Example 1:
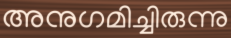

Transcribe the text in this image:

അനുഗമിച്ചിരുന്നു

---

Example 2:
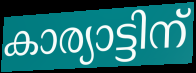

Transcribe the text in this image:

കാര്യാട്ടിന്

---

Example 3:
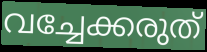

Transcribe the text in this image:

വച്ചേക്കരുത്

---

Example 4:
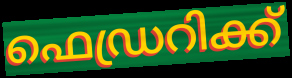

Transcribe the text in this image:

ഫെഡ്രറിക്ക്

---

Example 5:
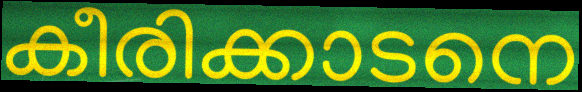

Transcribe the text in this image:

കീരിക്കാടനെ